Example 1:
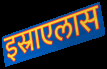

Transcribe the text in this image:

इस्राएलास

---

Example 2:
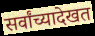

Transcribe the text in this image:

सर्वांच्यादेखत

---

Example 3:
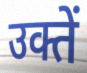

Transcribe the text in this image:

उक्तें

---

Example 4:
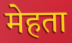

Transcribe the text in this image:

मेहता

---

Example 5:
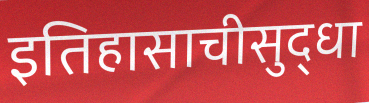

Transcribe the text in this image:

इतिहासाचीसुद्धा